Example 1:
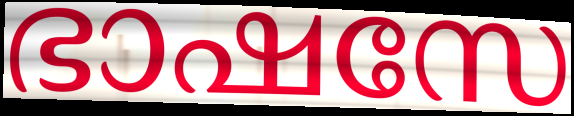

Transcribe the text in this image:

ഭാഷസേ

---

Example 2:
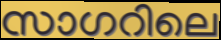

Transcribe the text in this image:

സാഗറിലെ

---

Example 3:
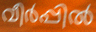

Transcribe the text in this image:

വീർപ്പിൽ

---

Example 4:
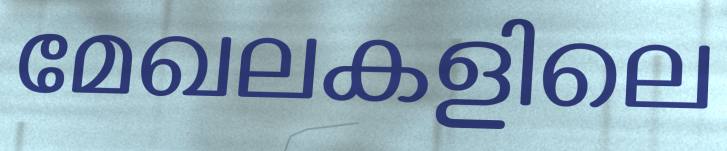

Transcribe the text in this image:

മേഖലകളിലെ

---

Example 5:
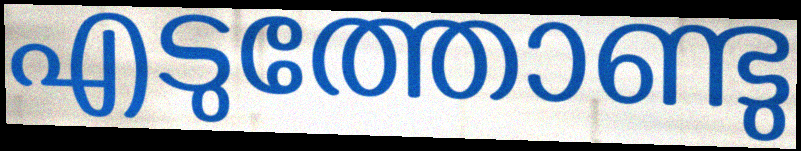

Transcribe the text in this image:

എടുത്തോണ്ടു